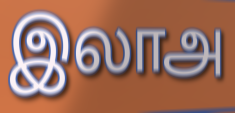
இலாஅ